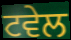
ਟਵੇਲ